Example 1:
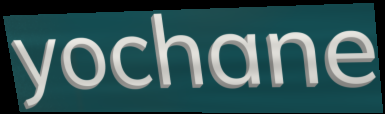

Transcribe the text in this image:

yochane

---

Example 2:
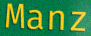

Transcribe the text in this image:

Manz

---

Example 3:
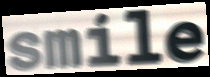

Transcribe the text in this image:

smile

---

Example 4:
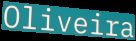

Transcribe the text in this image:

Oliveira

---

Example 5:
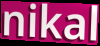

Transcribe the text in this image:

nikal